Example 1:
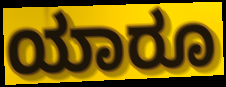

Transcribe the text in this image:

ಯಾರೂ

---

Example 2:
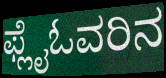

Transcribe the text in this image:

ಫ್ಲೈಓವರಿನ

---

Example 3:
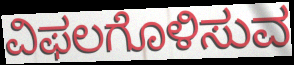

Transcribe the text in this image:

ವಿಫಲಗೊಳಿಸುವ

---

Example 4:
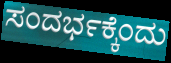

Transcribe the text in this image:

ಸಂದರ್ಭಕ್ಕೆಂದು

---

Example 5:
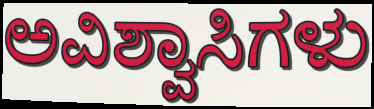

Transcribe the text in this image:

ಅವಿಶ್ವಾಸಿಗಳು